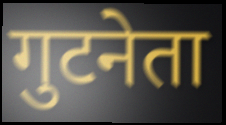
गुटनेता